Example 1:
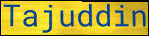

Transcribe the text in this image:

Tajuddin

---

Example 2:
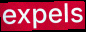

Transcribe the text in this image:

expels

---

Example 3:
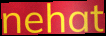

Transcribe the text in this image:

nehat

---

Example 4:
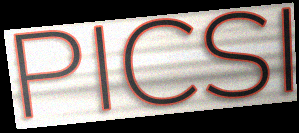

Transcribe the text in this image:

PICSI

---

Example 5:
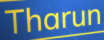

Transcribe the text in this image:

Tharun